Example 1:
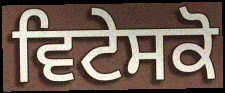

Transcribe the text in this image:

ਵਿਟੇਸਕੋ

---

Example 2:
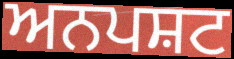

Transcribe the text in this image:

ਅਨਪਸ਼ਟ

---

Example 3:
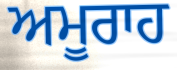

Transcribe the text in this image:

ਅਮੂਰਾਹ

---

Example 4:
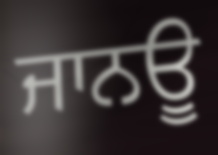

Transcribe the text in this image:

ਜਾਨਊ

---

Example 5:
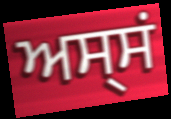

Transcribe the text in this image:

ਅਸ੍ਸਂ